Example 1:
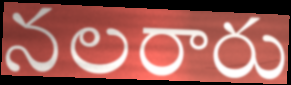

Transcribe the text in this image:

నలరారు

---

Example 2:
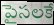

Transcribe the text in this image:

పైసలకే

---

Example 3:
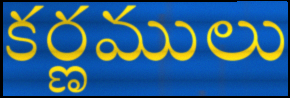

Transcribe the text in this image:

కర్ణములు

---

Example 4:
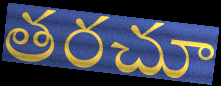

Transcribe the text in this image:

తరచూ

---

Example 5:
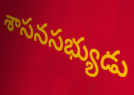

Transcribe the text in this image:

శాసనసభ్యుడు